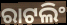
ରାଟଲିଂ